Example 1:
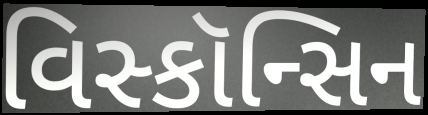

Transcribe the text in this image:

વિસ્કૉન્સિન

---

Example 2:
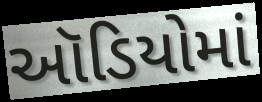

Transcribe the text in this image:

ઑડિયોમાં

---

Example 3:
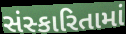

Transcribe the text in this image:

સંસ્કારિતામાં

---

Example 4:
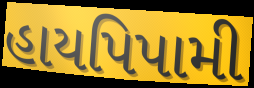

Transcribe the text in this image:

હાયપિપામી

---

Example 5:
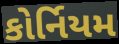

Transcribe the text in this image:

કોર્નિયમ